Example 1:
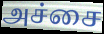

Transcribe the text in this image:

அச்சை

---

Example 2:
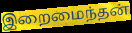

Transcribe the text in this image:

இறைமைந்தன்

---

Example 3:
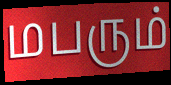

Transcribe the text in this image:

மபரும்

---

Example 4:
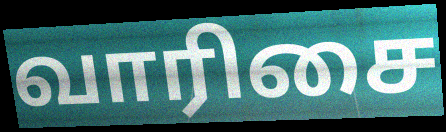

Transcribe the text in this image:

வாரிசை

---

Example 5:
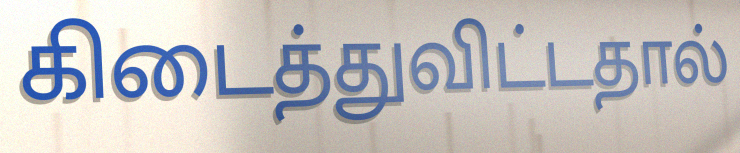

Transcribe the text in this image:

கிடைத்துவிட்டதால்